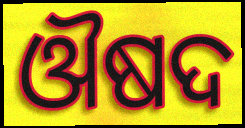
ଔଷଦ